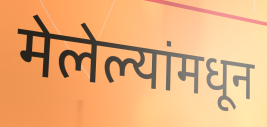
मेलेल्यांमधून